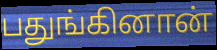
பதுங்கினான்